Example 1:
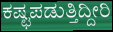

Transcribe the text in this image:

ಕಷ್ಟಪಡುತ್ತಿದ್ದೀರಿ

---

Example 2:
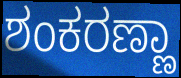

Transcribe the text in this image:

ಶಂಕರಣ್ಣಾ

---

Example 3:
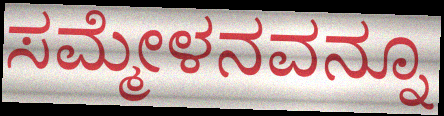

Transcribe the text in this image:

ಸಮ್ಮೇಳನವನ್ನೂ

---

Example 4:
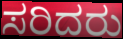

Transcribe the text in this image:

ಸರಿದರು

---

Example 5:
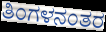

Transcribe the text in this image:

ತಿಂಗಳನಂತರ